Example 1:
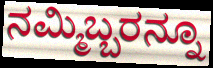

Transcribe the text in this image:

ನಮ್ಮಿಬ್ಬರನ್ನೂ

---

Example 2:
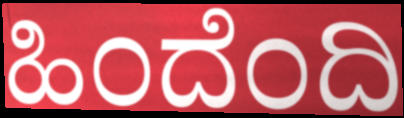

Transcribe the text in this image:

ಹಿಂದೆಂದಿ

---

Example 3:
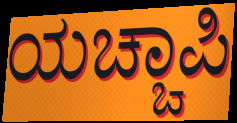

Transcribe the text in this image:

ಯಚ್ಚಾಪಿ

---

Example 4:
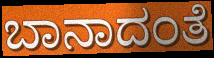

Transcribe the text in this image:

ಬಾನಾದಂತೆ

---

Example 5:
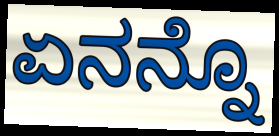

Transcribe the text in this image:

ಏನನ್ನೊ